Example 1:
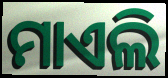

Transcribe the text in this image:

ମାଏଲି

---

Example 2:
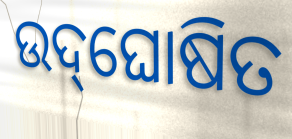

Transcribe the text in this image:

ଉଦ୍‌ଘୋଷିତ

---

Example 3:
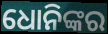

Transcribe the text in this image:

ଧୋନିଙ୍କର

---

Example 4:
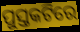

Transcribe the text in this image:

ପୁସ୍ତକଟିରେ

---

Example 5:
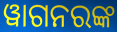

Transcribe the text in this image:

ୱାଗନରଙ୍କ